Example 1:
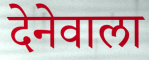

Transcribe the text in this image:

देनेवाला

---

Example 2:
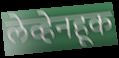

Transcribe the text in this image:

लेव्हेनहूक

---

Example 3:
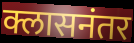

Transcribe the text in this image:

क्लासनंतर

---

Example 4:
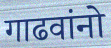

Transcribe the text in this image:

गाढवांनो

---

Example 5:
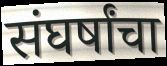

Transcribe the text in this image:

संघर्षांचा